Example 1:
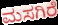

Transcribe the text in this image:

ಮಸಗಿರೆ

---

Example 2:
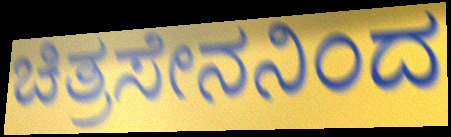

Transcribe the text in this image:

ಚಿತ್ರಸೇನನಿಂದ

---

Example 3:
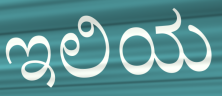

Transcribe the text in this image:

ಇಲಿಯ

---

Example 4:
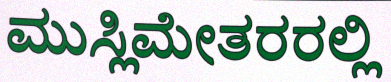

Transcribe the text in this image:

ಮುಸ್ಲಿಮೇತರರಲ್ಲಿ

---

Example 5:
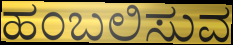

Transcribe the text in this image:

ಹಂಬಲಿಸುವ